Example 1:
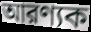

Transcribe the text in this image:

আরণ্যক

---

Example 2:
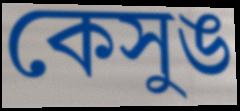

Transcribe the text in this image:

কেসুঙ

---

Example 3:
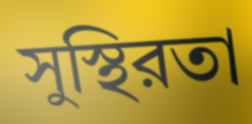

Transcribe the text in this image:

সুস্থিরতা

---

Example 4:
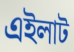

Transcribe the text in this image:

এইলাট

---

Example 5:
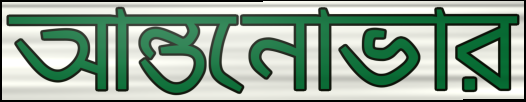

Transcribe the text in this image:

আন্তনোভার